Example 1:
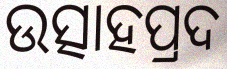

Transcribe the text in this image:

ଉତ୍ସାହପ୍ରଦ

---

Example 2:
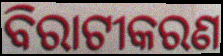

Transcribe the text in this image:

ବିରାଟୀକରଣ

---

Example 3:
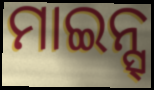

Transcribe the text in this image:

ମାଇନ୍ସ୍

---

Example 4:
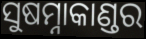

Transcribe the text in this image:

ସୁଷମ୍ନାକାଣ୍ଡର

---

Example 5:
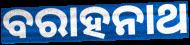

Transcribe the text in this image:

ବରାହନାଥ